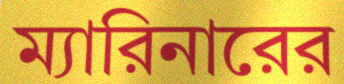
ম্যারিনারের